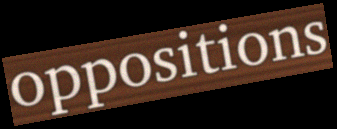
oppositions